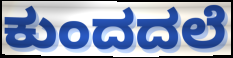
ಕುಂದದಲೆ